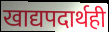
खाद्यपदार्थही